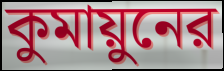
কুমায়ুনের